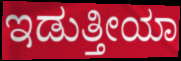
ಇಡುತ್ತೀಯಾ